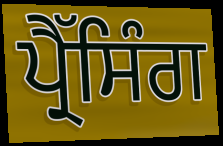
ਪ੍ਰੈੱਸਿੰਗ